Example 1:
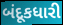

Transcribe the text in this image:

બંદૂકધારી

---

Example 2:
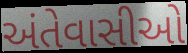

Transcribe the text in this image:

અંતેવાસીઓ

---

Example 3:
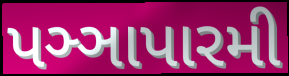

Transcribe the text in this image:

પઞ્ઞાપારમી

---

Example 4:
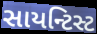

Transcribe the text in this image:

સાયન્ટિસ્ટ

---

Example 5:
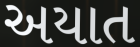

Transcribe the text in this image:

અયાત